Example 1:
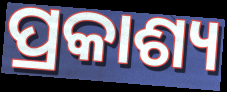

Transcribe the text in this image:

ପ୍ରକାଶ୍ୟ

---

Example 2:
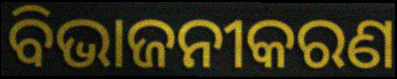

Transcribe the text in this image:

ବିଭାଜନୀକରଣ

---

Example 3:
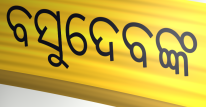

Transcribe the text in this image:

ବସୁଦେବଙ୍କ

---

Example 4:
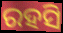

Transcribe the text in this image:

ରହସି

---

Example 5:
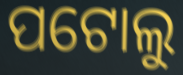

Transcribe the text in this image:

ପଟୋଲୁ